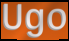
Ugo